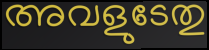
അവളുടേതു